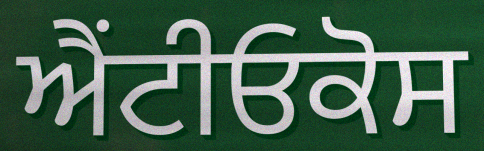
ਐਂਟੀਓਕੋਸ